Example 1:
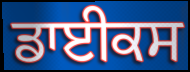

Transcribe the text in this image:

ਡਾਈਕਸ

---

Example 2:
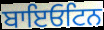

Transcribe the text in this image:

ਬਾਇਓਟਿਨ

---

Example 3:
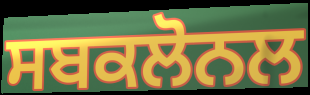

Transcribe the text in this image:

ਸਬਕਲੋਨਲ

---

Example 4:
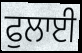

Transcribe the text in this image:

ਫੁਲਾਈ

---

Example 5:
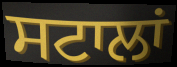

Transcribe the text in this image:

ਸਟਾਲਾਂ